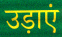
उड़ाएं